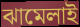
ঝামেলাই